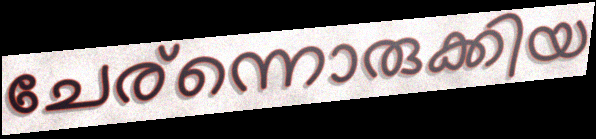
ചേര്ന്നൊരുക്കിയ